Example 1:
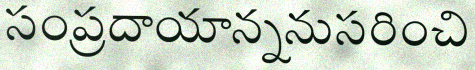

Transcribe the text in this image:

సంప్రదాయాన్ననుసరించి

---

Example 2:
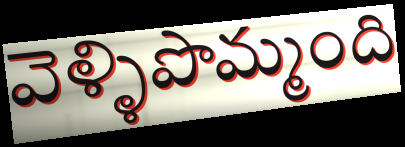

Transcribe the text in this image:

వెళ్ళిపొమ్మంది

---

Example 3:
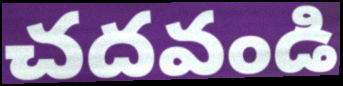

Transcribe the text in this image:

చదవండి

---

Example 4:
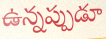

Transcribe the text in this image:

ఉన్నప్పుడూ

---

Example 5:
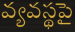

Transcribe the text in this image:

వ్యవస్థపై